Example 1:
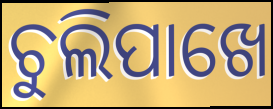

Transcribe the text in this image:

ଚୁଲିପାଖେ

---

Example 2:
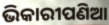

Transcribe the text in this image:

ଭିକାରୀପଣିଆ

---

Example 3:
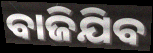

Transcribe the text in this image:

ବାଜିଯିବ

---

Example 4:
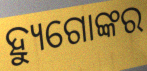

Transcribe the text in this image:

ହ୍ୟୁଗୋଙ୍କର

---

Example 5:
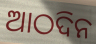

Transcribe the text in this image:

ଆଠଦିନ